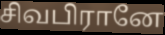
சிவபிரானே